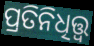
ପ୍ରତିନିଧିତ୍ତ୍ୱ